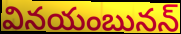
వినయంబునన్